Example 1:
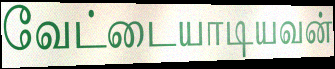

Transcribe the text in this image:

வேட்டையாடியவன்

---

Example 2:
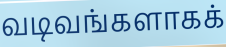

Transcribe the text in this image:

வடிவங்களாகக்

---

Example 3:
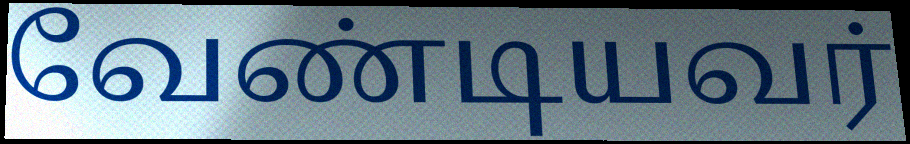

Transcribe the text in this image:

வேண்டியவர்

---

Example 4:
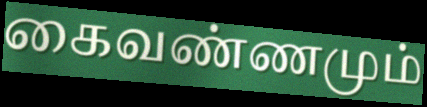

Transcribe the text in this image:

கைவண்ணமும்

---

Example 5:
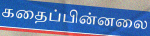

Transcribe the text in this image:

கதைப்பின்னலை